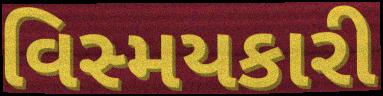
વિસ્મયકારી